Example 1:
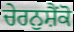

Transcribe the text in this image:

ਚੇਰਨੁਸ਼ੈਂਕੋ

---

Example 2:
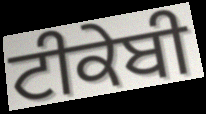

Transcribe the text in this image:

ਟੀਕੇਬੀ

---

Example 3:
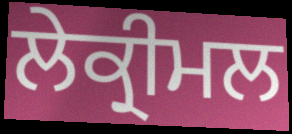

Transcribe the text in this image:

ਲੇਕ੍ਰੀਮਲ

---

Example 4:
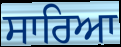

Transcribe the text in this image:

ਸਾਰਿਆ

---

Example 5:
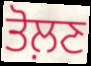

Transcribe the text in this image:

ਤੋਲ਼ਣ